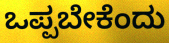
ಒಪ್ಪಬೇಕೆಂದು